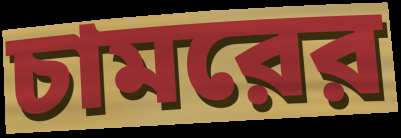
চামরের